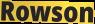
Rowson